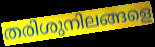
തരിശുനിലങ്ങളെ